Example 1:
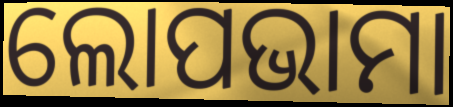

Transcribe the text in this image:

ଲୋପଭାମା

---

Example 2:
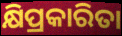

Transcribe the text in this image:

କ୍ଷିପ୍ରକାରିତା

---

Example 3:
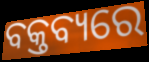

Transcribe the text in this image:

ବକ୍ତବ୍ୟରେ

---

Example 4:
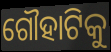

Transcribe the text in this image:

ଗୌହାଟିକୁ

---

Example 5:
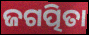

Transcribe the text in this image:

ଜଗତ୍ପିତା